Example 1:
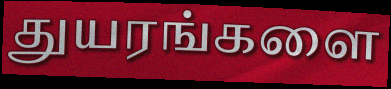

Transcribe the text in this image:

துயரங்களை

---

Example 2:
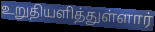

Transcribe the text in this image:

உறுதியளித்துள்ளார்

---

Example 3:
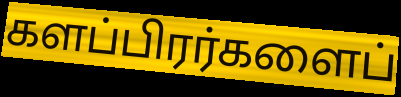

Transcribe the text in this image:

களப்பிரர்களைப்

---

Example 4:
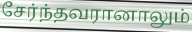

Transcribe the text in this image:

சேர்ந்தவரானாலும்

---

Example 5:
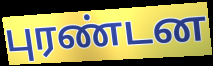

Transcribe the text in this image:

புரண்டன